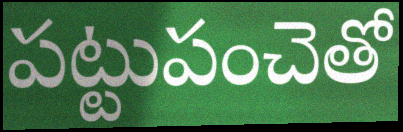
పట్టుపంచెతో